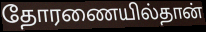
தோரணையில்தான்